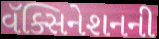
વૅક્સિનેશનની